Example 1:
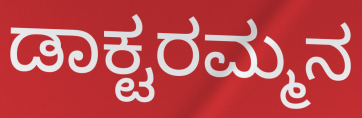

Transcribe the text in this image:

ಡಾಕ್ಟರಮ್ಮನ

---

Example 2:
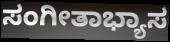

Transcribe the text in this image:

ಸಂಗೀತಾಭ್ಯಾಸ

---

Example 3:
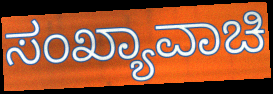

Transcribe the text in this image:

ಸಂಖ್ಯಾವಾಚಿ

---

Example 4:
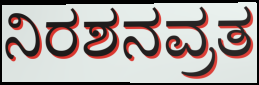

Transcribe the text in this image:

ನಿರಶನವ್ರತ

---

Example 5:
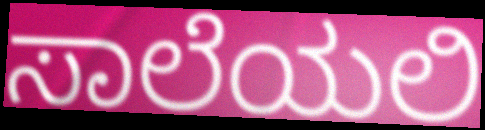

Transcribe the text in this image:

ಸಾಲೆಯಲಿ